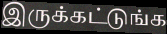
இருக்கட்டுங்க